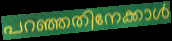
പറഞ്ഞതിനേക്കാൾ